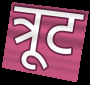
त्रूट